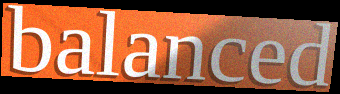
balanced